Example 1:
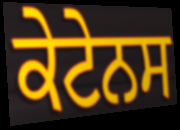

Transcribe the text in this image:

ਕੇਟੇਨਸ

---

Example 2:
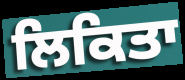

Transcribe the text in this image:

ਲਿਕਿਤਾ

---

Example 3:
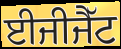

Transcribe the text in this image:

ਈਜੀਜੈੱਟ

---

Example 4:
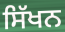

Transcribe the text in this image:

ਸਿੱਖਨ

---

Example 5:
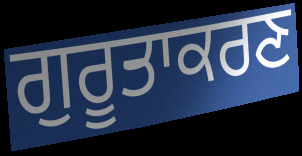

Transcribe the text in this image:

ਗੁਰੂਤਾਕਰਣ